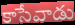
కాసేవాడు